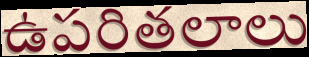
ఉపరితలాలు